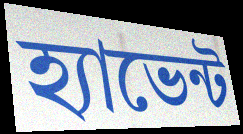
হ্যাভেন্ট